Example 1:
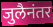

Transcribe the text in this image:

जुलैनंतर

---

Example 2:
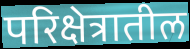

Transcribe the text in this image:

परिक्षेत्रातील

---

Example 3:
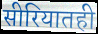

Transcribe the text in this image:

सीरियातही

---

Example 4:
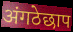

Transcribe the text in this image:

अंगठेछाप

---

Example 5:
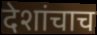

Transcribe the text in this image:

देशांचाच